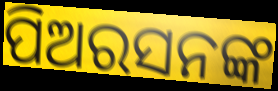
ପିଅରସନଙ୍କ